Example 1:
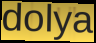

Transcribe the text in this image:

dolya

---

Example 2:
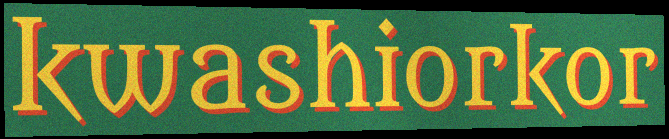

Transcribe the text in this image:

kwashiorkor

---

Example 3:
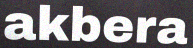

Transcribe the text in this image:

akbera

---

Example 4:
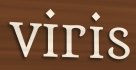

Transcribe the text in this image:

viris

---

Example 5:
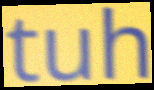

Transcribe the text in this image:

tuh